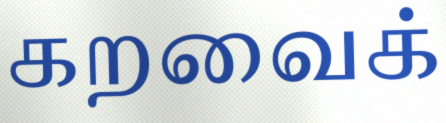
கறவைக்